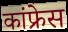
कांफ्रेस